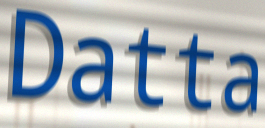
Datta